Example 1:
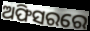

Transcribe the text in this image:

ଅଫିସରରେ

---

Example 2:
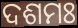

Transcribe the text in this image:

ଦଶମଃ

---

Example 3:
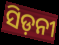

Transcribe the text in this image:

ସିଡ଼ନୀ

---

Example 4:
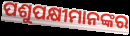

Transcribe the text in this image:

ପଶୁପକ୍ଷୀମାନଙ୍କର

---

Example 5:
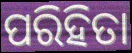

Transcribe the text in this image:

ପରିହିତା